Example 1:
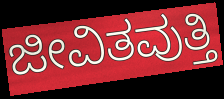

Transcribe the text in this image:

ಜೀವಿತವುತ್ತಿ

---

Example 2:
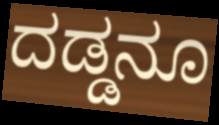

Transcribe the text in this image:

ದಡ್ಡನೂ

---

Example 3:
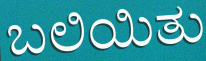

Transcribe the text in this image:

ಬಲಿಯಿತು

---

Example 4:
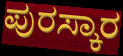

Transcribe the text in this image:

ಪುರಸ್ಕಾರ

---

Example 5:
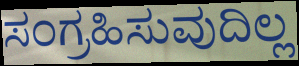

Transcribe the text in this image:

ಸಂಗ್ರಹಿಸುವುದಿಲ್ಲ